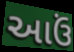
આઉં